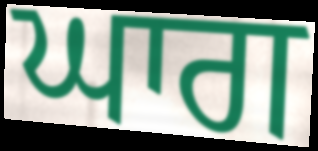
ਘਾਗ